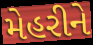
મેહરીને